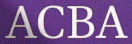
ACBA